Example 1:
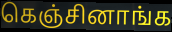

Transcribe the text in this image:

கெஞ்சினாங்க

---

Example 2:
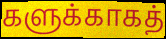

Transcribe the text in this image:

களுக்காகத்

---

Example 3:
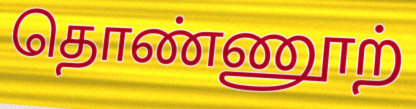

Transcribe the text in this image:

தொண்ணூற்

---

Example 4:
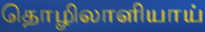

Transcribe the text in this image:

தொழிலாளியாய்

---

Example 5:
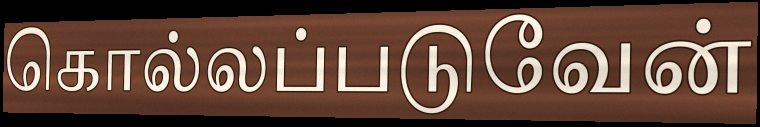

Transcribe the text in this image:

கொல்லப்படுவேன்